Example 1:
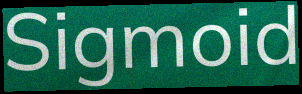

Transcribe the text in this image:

Sigmoid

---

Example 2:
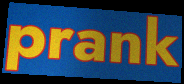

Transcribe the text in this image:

prank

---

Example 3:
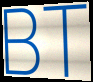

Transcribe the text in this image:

BT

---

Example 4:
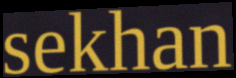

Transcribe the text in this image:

sekhan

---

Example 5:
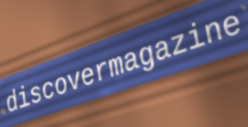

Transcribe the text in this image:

discovermagazine